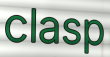
clasp